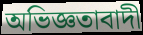
অভিজ্ঞতাবাদী